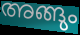
അങ്ങും